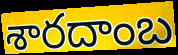
శారదాంబ